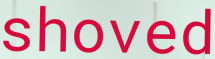
shoved